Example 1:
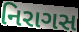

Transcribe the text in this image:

નિરાગસ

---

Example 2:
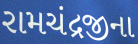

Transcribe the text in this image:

રામચંદ્રજીના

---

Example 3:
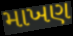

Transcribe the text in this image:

માખણ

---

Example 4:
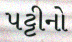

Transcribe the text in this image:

પટ્ટીનો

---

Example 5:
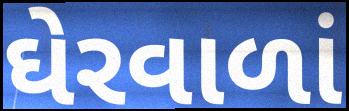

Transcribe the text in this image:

ઘેરવાળાં